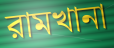
রামখানা